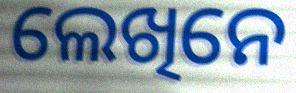
ଲେଖିନେ